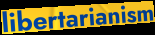
libertarianism